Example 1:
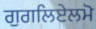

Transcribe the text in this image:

ਗੁਗਲਿਏਲਮੋ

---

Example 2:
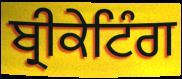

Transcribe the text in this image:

ਬ੍ਰੀਕੇਟਿੰਗ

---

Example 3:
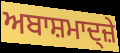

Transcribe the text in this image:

ਅਬਾਸ਼ਮਾਦ੍ਜ਼ੇ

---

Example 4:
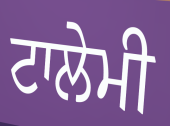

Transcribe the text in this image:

ਟਾਲੇਮੀ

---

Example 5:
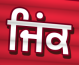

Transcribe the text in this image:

ਜਿਂਕ